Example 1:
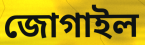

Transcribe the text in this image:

জোগাইল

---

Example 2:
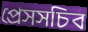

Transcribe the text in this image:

প্রেসসচিব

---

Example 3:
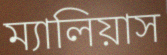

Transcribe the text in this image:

ম্যালিয়াস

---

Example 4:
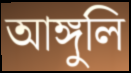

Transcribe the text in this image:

আঙ্গুলি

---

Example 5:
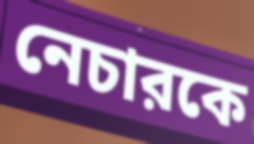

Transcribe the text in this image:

নেচারকে